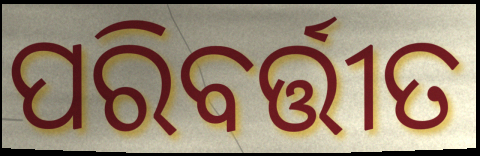
ପରିବର୍ତ୍ତୀତ